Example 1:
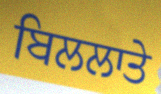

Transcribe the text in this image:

ਬਿਲਲਾਤੇ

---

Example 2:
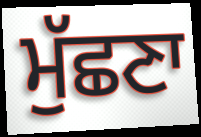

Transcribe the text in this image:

ਮੁੱਛਣਾ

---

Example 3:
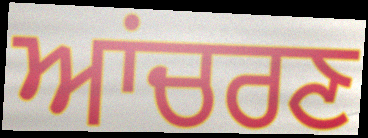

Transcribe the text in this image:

ਆਂਚਰਣ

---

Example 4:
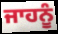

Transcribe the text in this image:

ਜਾਹਨੂੰ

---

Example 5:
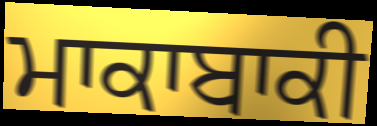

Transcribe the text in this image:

ਮਾਕਾਬਾਕੀ